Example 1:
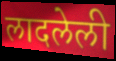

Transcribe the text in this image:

लादलेली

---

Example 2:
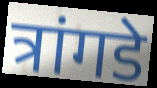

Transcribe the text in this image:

त्रांगडे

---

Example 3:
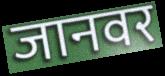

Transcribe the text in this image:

जानवर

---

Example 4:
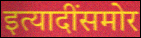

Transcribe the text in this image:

इत्यादींसमोर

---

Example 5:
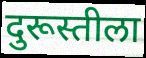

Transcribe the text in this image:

दुरूस्तीला